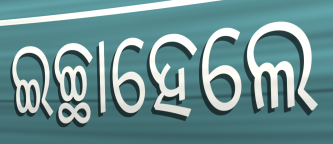
ଇଚ୍ଛାହେଲେ